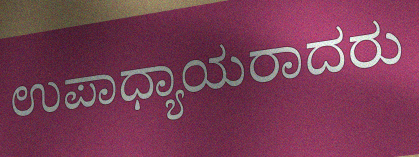
ಉಪಾಧ್ಯಾಯರಾದರು